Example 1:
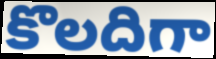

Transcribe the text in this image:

కొలదిగా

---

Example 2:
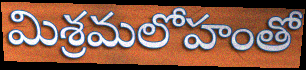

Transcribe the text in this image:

మిశ్రమలోహంతో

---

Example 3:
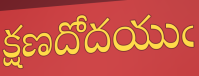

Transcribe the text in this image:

క్షణదోదయుఁ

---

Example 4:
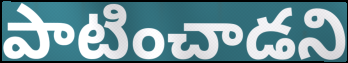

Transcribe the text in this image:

పాటించాడని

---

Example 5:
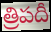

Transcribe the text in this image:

త్రిపదీ